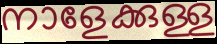
നാളേക്കുള്ള